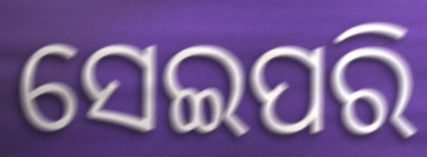
ସେଇପରି